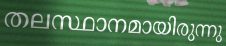
തലസ്ഥാനമായിരുന്നു